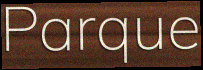
Parque